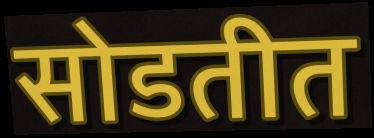
सोडतीत